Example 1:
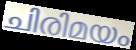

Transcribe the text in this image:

ചിരിമയം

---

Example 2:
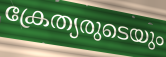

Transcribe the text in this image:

ക്രേത്യരുടെയും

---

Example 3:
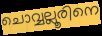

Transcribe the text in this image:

ചൊവ്വല്ലൂരിനെ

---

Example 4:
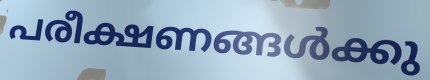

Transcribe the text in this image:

പരീക്ഷണങ്ങൾക്കു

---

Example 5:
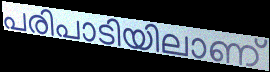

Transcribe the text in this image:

പരിപാടിയിലാണ്